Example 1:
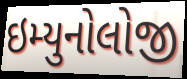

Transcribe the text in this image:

ઇમ્યુનોલોજી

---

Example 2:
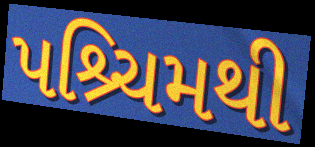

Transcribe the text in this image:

પશ્ર્ચિમથી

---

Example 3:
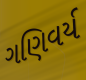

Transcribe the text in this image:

ગણિવર્ય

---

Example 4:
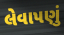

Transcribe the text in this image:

લેવાપણું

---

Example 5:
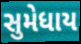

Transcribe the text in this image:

સુમેધાય